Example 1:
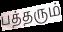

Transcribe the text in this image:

பத்தரும்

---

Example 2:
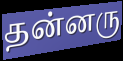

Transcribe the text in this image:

தன்னரு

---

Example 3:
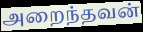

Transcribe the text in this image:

அறைந்தவன்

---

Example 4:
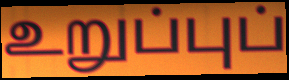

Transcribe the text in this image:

உறுப்புப்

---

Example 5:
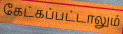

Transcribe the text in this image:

கேட்கப்பட்டாலும்